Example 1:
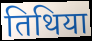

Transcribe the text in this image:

तिथिया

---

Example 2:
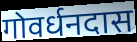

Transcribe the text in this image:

गोवर्धनदास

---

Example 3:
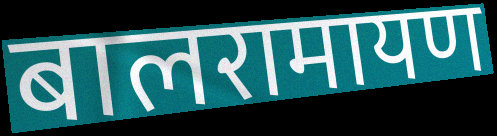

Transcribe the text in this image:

बालरामायण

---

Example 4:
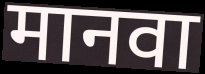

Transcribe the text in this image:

मानवा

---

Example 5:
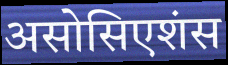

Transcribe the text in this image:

असोसिएशंस